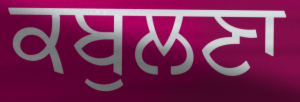
ਕਬੁਲਣਾ